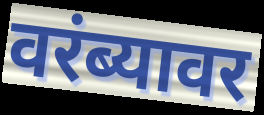
वरंब्यावर